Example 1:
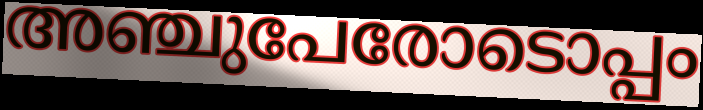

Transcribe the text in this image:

അഞ്ചുപേരോടൊപ്പം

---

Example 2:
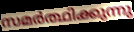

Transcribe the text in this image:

സമർത്ഥിക്കുന്നു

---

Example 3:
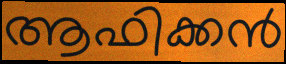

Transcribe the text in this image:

ആഫിക്കൻ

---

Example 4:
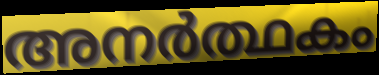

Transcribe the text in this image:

അനർത്ഥകം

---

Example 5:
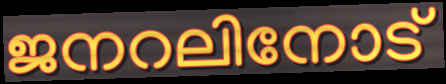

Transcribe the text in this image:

ജനറലിനോട്